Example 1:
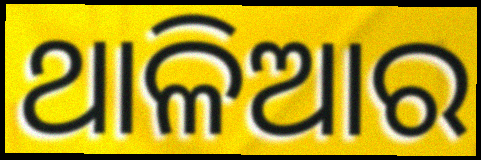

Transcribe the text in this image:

ଥାଳିଆର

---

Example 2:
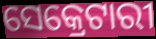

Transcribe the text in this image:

ସେକ୍ରେଟାରୀ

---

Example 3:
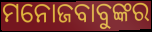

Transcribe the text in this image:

ମନୋଜବାବୁଙ୍କର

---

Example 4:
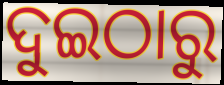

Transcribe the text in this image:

ଦୁଇଠାରୁ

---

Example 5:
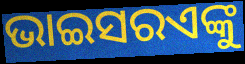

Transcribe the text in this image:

ଭାଇସରଏଙ୍କୁ